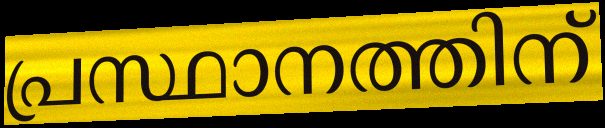
പ്രസ്ഥാനത്തിന്